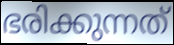
ഭരിക്കുന്നത്